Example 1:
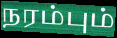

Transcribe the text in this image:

நரம்பும்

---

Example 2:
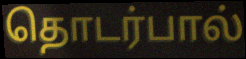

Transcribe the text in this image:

தொடர்பால்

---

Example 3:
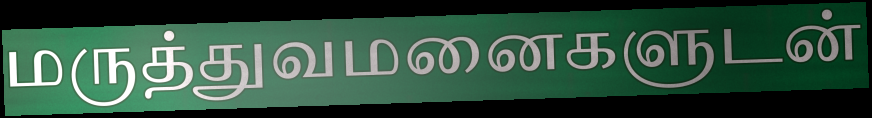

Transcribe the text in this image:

மருத்துவமனைகளுடன்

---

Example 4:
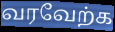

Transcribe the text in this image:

வரவேற்க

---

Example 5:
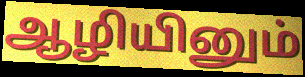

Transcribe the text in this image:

ஆழியினும்